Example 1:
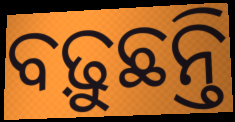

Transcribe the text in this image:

ବଢ଼ୁଛନ୍ତି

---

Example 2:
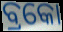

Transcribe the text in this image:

ବ୍ରକୋ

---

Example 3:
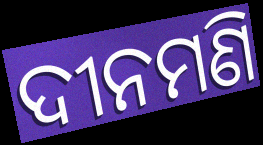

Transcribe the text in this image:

ଦୀନମଣି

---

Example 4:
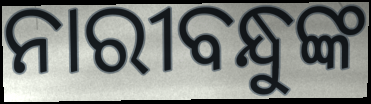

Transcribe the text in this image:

ନାରୀବନ୍ଧୁଙ୍କ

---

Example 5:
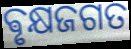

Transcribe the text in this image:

ଵୃକ୍ଷଜଗତ